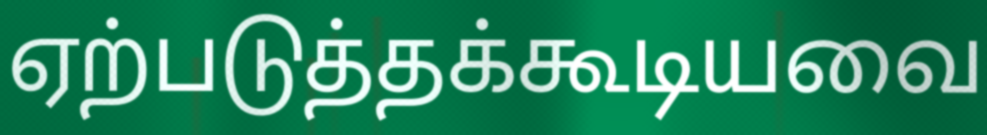
ஏற்படுத்தக்கூடியவை